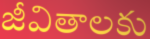
జీవితాలకు